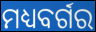
ମଧ୍ୟବର୍ଗର